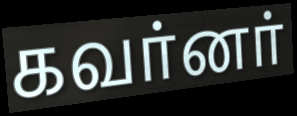
கவர்னர்